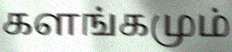
களங்கமும்